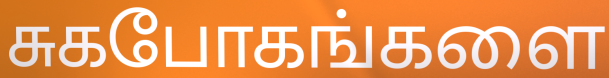
சுகபோகங்களை